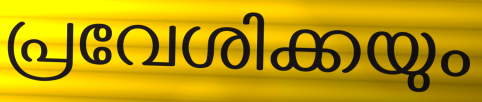
പ്രവേശിക്കയും